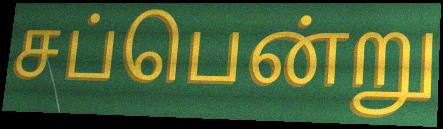
சப்பென்று